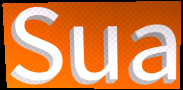
Sua